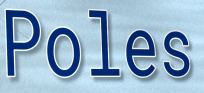
Poles